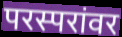
परस्परांवर